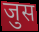
जुस